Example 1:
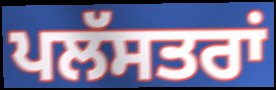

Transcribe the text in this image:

ਪਲੱਸਤਰਾਂ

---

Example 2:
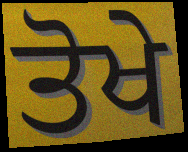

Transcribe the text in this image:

ਤੋਖੇ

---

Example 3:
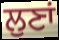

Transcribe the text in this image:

ਲੁਣਾਂ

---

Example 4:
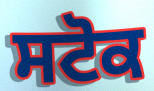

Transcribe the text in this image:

ਸਟੋਕ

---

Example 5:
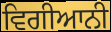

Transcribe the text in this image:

ਵਿਗੀਆਨੀ